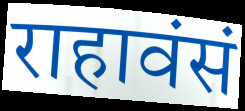
राहावंसं